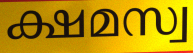
ക്ഷമസ്വ